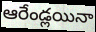
ఆరేండ్లయినా